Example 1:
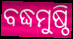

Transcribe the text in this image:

ବଦ୍ଧମୁଷ୍ଠି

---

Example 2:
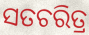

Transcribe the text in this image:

ସତଚରିତ୍ର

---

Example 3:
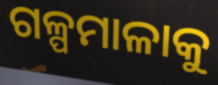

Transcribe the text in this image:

ଗଳ୍ପମାଳାକୁ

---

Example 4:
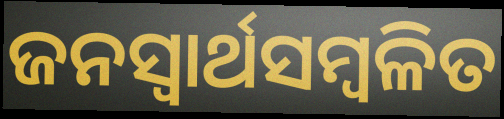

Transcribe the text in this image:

ଜନସ୍ବାର୍ଥସମ୍ବଳିତ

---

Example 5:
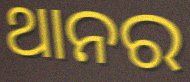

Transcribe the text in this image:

ଥାନର